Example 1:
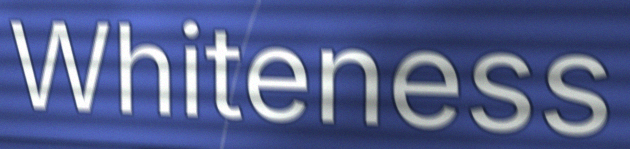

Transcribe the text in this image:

Whiteness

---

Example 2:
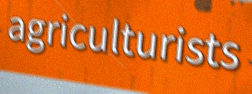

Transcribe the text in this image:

agriculturists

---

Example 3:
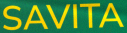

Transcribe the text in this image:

SAVITA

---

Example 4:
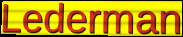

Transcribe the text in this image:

Lederman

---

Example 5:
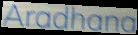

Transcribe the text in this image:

Aradhana